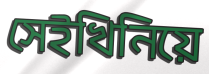
সেইখিনিয়ে